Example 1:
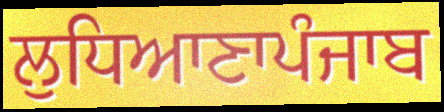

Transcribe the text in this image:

ਲੁਧਿਆਣਾਪੰਜਾਬ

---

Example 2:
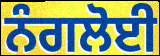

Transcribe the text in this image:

ਨੰਗਲੋਈ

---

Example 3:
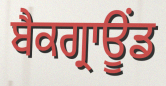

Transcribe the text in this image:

ਬੈਕਗ੍ਰਾਊਂਡ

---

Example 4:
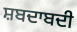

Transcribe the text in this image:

ਸ਼ਬਦਾਬਦੀ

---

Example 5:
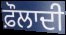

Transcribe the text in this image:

ਫ਼ੌਲਾਦੀ